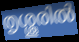
തൃശ്ശൂരിൽ